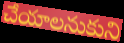
చేయాలనుకుని